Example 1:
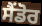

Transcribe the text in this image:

ਸੈਂਡੋਰ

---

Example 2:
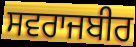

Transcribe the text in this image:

ਸਵਰਾਜਬੀਰ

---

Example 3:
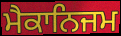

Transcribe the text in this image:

ਮੈਕਾਨਿਜਮ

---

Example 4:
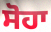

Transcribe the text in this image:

ਸੋਹਾ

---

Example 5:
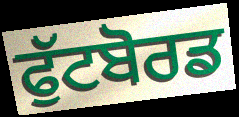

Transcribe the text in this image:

ਫੁੱਟਬੋਰਡ